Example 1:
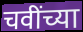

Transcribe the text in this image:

चवींच्या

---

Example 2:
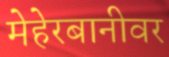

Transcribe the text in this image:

मेहेरबानीवर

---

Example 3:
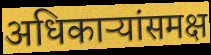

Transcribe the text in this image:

अधिकाऱ्यांसमक्ष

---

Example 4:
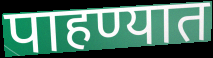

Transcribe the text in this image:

पाहण्यात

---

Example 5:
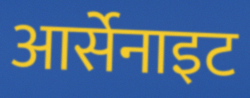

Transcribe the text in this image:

आर्सेनाइट